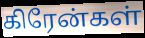
கிரேன்கள்